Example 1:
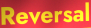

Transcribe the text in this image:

Reversal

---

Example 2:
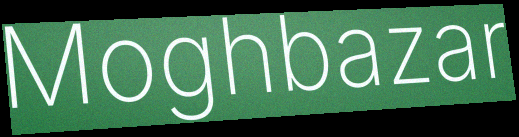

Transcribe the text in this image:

Moghbazar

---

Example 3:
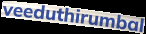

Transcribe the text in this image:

veeduthirumbal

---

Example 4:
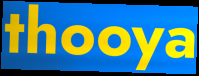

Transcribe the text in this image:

thooya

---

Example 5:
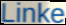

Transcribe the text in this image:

Linke